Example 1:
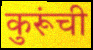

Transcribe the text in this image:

कुरूंची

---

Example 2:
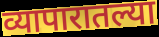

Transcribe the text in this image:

व्यापारातल्या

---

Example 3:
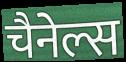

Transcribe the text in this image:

चैनेल्स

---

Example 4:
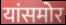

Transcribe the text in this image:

यांसमोर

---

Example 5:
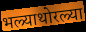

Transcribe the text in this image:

भल्याथोरल्या